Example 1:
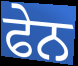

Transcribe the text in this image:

ਫੇਨ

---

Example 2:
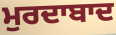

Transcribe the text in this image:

ਮੁਰਦਾਬਾਦ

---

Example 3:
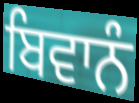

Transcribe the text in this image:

ਬਿਵਾਨੰ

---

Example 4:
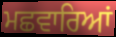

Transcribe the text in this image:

ਮਛਵਾਰਿਆਂ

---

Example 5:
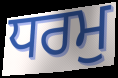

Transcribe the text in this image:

ਧਰਮੁ